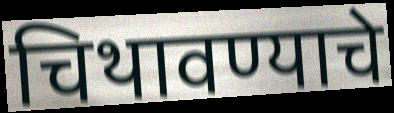
चिथावण्याचे